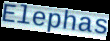
Elephas